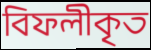
বিফলীকৃত